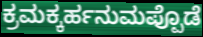
ಕ್ರಮಕ್ಕರ್ಹನುಮಪ್ಪೊಡೆ